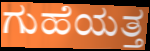
ಗುಹೆಯತ್ತ